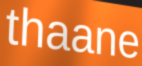
thaane